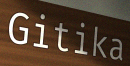
Gitika